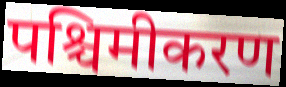
पश्चिमीकरण